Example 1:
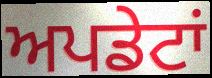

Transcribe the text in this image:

ਅਪਡੇਟਾਂ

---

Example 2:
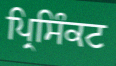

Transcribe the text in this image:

ਪ੍ਰਿਸਿੰਕਟ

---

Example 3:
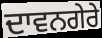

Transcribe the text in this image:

ਦਾਵਨਗੇਰੇ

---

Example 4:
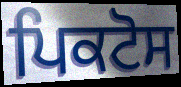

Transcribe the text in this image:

ਪਿਕਟੋਸ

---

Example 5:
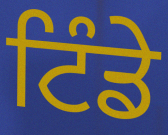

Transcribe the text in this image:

ਟਿੰਡੇ